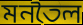
মনতৈল